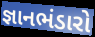
જ્ઞાનભંડારો